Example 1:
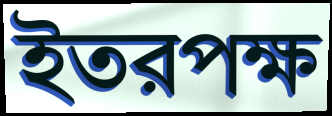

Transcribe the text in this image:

ইতরপক্ষ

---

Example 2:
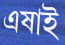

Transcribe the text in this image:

এষাই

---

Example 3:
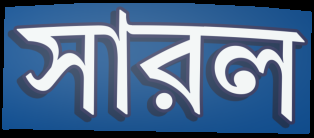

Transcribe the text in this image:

সারল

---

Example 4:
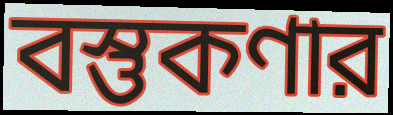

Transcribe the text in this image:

বস্তুকণার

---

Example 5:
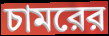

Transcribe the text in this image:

চামরের